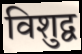
विशुद्व